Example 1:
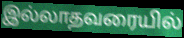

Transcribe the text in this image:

இல்லாதவரையில்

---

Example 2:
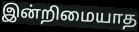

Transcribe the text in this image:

இன்றிமையாத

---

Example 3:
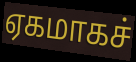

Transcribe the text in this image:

ஏகமாகச்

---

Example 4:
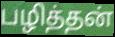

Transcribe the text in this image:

பழித்தன்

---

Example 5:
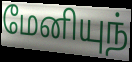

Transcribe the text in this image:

மேனியுந்